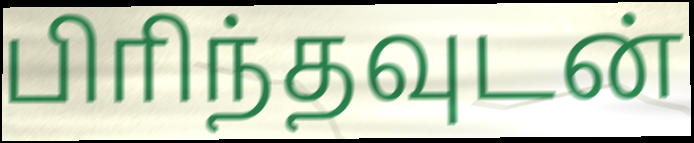
பிரிந்தவுடன்